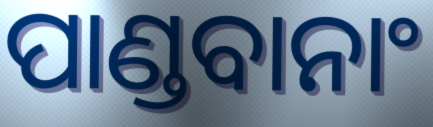
ପାଣ୍ଡବାନାଂ